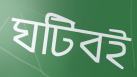
ঘটিবই